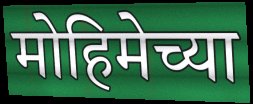
मोहिमेच्या